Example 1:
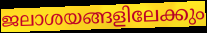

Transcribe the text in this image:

ജലാശയങ്ങളിലേക്കും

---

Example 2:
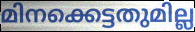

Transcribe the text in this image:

മിനക്കെട്ടതുമില്ല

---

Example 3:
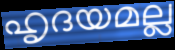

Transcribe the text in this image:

ഹൃദയമല്ല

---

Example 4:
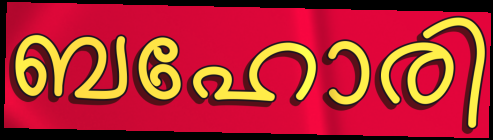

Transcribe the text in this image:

ബഹോരി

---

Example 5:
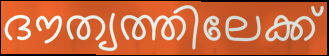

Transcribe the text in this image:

ദൗത്യത്തിലേക്ക്